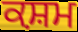
ਕ਼ਸ਼ਮ